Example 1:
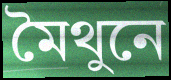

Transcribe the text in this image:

মৈথুনে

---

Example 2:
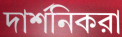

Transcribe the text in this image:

দার্শনিকরা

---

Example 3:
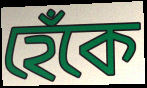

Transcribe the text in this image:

হেঁকে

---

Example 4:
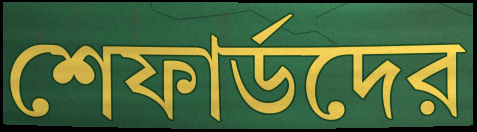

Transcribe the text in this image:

শেফার্ডদের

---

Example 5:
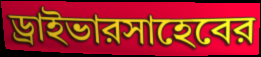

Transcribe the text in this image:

ড্রাইভারসাহেবের